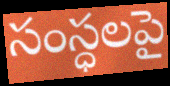
సంస్ధలపై